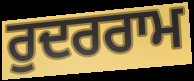
ਰੁਦਰਰਾਮ